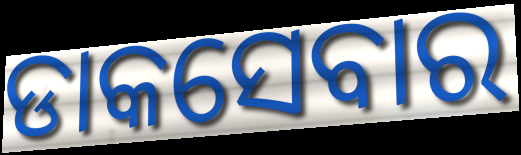
ଡାକସେବାର